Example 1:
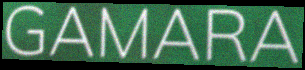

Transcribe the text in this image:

GAMARA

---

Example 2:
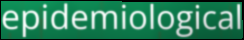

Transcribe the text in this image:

epidemiological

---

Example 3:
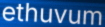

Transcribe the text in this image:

ethuvum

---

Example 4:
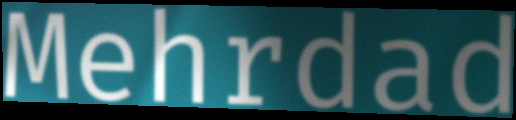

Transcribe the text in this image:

Mehrdad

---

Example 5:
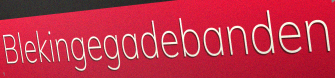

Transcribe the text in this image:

Blekingegadebanden